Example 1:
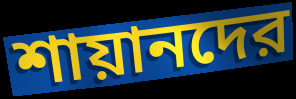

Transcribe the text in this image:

শায়ানদের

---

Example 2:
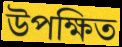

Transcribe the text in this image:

উপক্ষিত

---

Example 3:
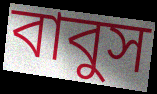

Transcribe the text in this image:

বাবুস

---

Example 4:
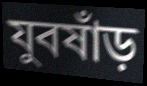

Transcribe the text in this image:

যুবষাঁড়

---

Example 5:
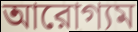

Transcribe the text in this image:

আরোগ্যম